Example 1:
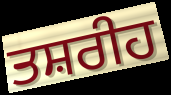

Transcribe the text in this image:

ਤਸ਼ਰੀਹ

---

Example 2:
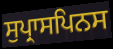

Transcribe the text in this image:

ਸੁਪ੍ਰਾਸਪਿਨਸ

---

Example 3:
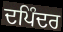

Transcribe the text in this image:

ਦਪਿੰਦਰ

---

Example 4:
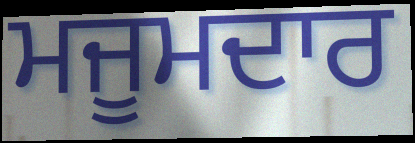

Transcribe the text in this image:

ਮਜੂਮਦਾਰ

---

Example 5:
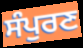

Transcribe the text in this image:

ਸੰਪੁਰਣ